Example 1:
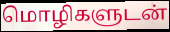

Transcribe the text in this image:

மொழிகளுடன்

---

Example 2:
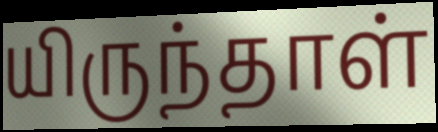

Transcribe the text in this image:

யிருந்தாள்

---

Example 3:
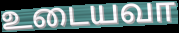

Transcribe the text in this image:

உடையவா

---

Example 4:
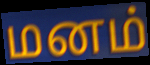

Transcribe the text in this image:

மனம்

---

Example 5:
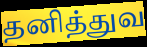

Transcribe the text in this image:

தனித்துவ